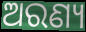
ଅରଣ୍ୟ